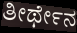
ತೀರ್ಥೇನ